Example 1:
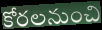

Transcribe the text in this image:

కోరలనుంచి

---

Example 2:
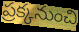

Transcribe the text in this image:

ప్రక్కనుంచి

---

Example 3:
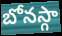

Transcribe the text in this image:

బోనస్గా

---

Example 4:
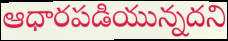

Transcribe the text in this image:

ఆధారపడియున్నదని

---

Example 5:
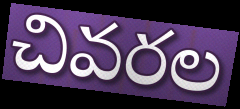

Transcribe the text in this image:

చివరల